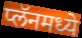
प्लॅनमध्ये